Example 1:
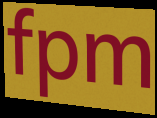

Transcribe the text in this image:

fpm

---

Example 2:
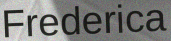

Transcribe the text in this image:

Frederica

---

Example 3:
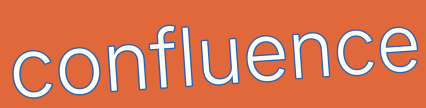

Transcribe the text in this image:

confluence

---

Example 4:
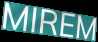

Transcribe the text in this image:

MIREM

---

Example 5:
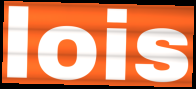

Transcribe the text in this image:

lois